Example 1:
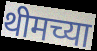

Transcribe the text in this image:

थीमच्या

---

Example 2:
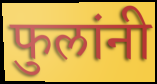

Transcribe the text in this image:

फुलांनी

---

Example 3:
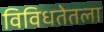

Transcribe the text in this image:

विविधतेतला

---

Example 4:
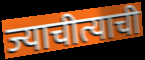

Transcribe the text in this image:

ज्याचीत्याची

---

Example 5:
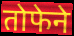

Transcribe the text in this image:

तोफेने